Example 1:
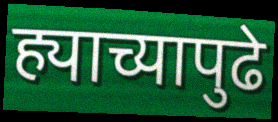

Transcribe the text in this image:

ह्याच्यापुढे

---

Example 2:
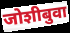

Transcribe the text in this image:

जोशीबुवा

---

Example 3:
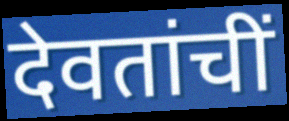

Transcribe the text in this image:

देवतांचीं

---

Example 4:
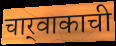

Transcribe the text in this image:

चार्वाकाची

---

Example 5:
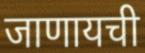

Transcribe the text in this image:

जाणायची